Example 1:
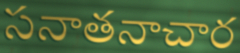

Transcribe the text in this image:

సనాతనాచార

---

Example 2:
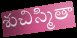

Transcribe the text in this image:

శుచిస్మితా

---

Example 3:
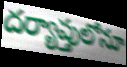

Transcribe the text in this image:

దర్యాప్తులోనూ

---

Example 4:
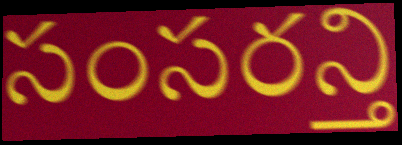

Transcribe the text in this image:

సంసరన్తి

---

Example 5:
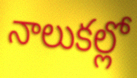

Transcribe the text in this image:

నాలుకల్లో